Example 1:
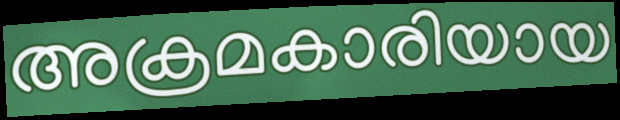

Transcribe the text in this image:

അക്രമകാരിയായ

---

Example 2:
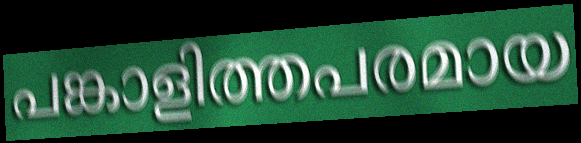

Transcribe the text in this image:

പങ്കാളിത്തപരമായ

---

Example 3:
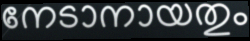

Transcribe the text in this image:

നേടാനായതും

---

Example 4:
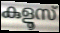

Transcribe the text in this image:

കുളൂസ്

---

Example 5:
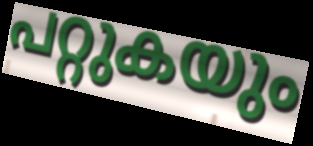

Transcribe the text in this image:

പറ്റുകയും